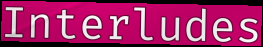
Interludes